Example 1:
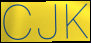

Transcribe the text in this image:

CJK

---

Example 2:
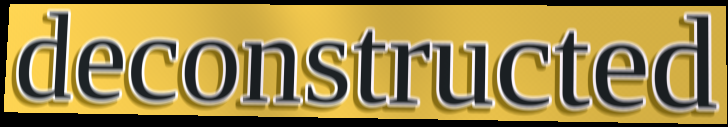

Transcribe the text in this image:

deconstructed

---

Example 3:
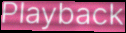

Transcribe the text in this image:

Playback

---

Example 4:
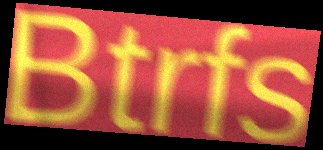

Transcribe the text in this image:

Btrfs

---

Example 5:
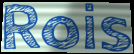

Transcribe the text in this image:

Rois